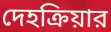
দেহক্রিয়ার